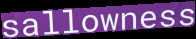
sallowness